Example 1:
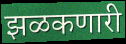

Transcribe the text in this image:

झळकणारी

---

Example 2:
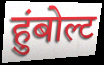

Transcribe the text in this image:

हुंबोल्ट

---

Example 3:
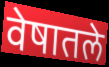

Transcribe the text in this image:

वेषातले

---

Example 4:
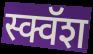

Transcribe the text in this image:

स्क्वॅश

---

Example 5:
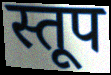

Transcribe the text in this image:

स्तूप